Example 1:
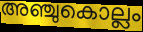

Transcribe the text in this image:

അഞ്ചുകൊല്ലം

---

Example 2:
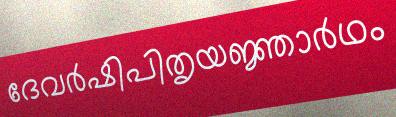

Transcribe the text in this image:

ദേവർഷിപിതൃയജ്ഞാർഥം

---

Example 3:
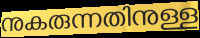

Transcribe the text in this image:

നുകരുന്നതിനുള്ള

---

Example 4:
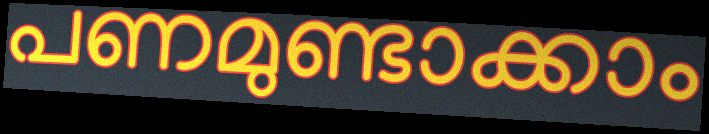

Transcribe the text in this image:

പണമുണ്ടാക്കാം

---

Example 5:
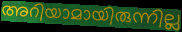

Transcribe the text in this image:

അറിയാമായിരുന്നില്ല